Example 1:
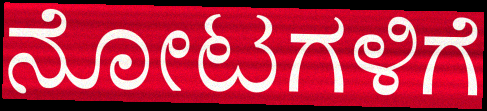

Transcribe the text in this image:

ನೋಟಗಳಿಗೆ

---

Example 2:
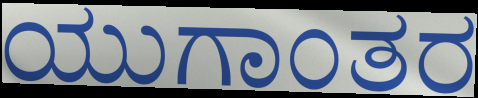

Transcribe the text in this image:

ಯುಗಾಂತರ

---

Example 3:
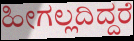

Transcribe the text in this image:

ಹೀಗಲ್ಲದಿದ್ದರೆ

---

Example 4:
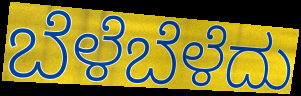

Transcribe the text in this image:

ಬೆಳೆಬೆಳೆದು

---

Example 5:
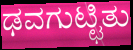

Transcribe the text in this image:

ಢವಗುಟ್ಟಿತು